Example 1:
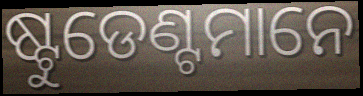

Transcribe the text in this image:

ଷ୍ଟୁଡେଣ୍ଟମାନେ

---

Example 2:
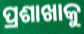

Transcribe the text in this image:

ପ୍ରଶାଖାକୁ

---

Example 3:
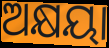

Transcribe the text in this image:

ଅକ୍ଷୟା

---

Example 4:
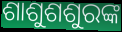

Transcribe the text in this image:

ଶାଶୁଶଶୁରଙ୍କ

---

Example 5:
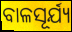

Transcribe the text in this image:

ବାଳସୂର୍ଯ୍ୟ